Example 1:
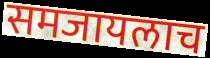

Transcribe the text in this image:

समजायलाच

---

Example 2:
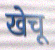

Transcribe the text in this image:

खेचू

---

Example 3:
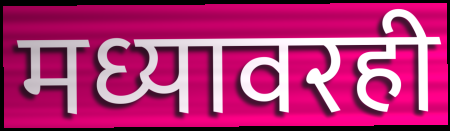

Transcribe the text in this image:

मध्यावरही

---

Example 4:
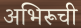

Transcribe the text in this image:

अभिरूची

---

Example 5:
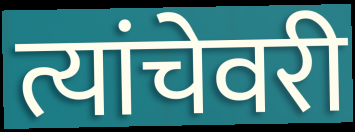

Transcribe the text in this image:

त्यांचेवरी